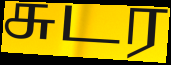
சுடர